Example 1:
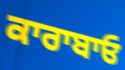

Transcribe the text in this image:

ਕਾਰਾਬਾਓ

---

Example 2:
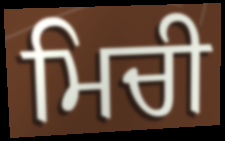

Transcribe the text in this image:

ਮਿਚੀ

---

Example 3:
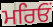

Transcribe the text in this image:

ਮਰਿਓਂ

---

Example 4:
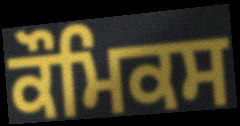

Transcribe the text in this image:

ਕੌਮਿਕਸ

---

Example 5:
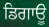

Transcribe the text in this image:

ਡਿਗਾਊ